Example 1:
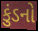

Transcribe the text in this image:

કુંડનો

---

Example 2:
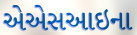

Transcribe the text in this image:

એએસઆઇના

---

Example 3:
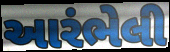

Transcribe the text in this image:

આરંભેલી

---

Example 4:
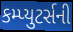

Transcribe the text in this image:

કમ્પ્યુટર્સની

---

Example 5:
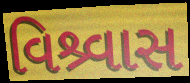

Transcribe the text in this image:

વિશ્ર્વાસ